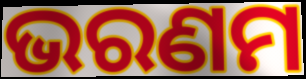
ଭରଣମ